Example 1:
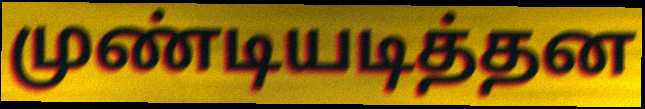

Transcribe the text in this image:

முண்டியடித்தன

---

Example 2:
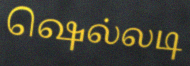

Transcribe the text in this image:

ஷெல்லடி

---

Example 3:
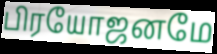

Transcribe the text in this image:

பிரயோஜனமே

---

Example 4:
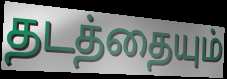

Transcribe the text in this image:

தடத்தையும்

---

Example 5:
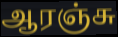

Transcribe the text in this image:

ஆரஞ்சு